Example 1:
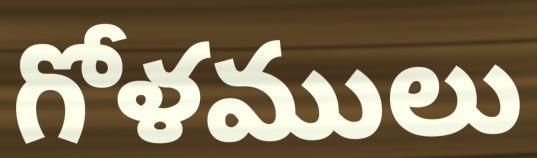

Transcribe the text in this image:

గోళములు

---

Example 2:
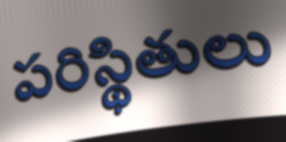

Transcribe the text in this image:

పరిస్థితులు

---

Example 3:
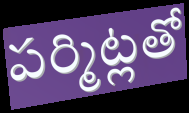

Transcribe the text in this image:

పర్మిట్లతో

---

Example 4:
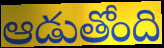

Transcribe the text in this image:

ఆడుతోంది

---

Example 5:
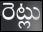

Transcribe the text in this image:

రెట్లు